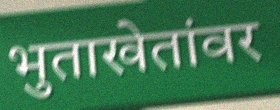
भुताखेतांवर